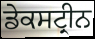
ਡੇਕਸਟ੍ਰੀਨ